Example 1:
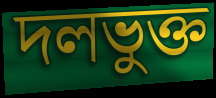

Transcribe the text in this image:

দলভুক্ত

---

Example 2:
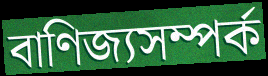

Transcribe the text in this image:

বাণিজ্যসম্পর্ক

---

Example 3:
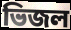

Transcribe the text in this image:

ভিজল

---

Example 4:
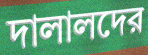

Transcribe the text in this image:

দালালদের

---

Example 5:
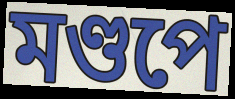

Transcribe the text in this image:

মণ্ডপে